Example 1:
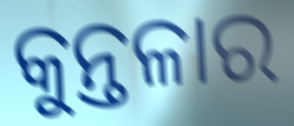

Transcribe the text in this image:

କୁନ୍ତଳାର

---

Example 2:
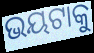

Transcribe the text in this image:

ଭୟଟାକୁ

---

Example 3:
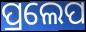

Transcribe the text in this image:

ପ୍ରଲେପ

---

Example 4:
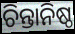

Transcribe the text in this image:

ଚିନ୍ତାନିଷ୍ଠ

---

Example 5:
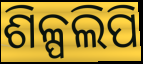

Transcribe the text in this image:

ଶିଳ୍ପଲିପି